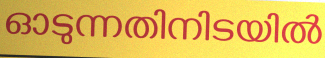
ഓടുന്നതിനിടയിൽ